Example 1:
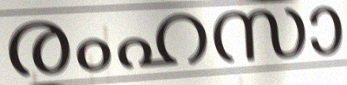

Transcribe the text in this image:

രംഹസാ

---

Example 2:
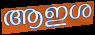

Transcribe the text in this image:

ആഇശ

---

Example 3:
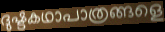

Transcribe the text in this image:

ദുഷ്ടകഥാപാത്രങ്ങളെ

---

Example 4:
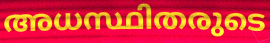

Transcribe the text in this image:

അധസ്ഥിതരുടെ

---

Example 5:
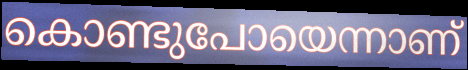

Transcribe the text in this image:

കൊണ്ടുപോയെന്നാണ്